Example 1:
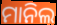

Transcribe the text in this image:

ମାନିଲ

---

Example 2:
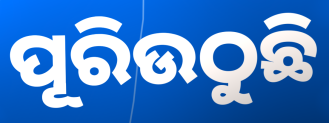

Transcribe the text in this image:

ପୂରିଉଠୁଛି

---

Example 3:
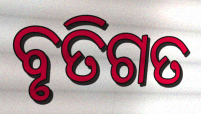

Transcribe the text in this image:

ବୃତିଗତ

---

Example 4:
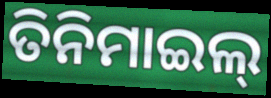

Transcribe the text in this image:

ତିନିମାଇଲ୍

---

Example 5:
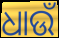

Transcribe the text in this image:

ଧାଉଁ